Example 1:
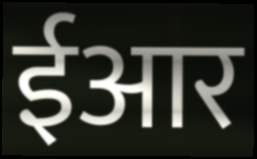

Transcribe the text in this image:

ईआर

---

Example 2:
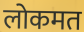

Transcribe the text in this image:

लोकमत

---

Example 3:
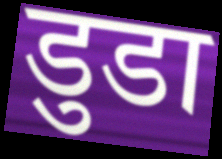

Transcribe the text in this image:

डुडा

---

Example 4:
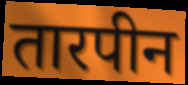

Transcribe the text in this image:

तारपीन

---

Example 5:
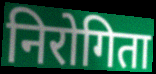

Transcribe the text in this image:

निरोगिता